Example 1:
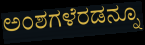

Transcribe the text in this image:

ಅಂಶಗಳೆರಡನ್ನೂ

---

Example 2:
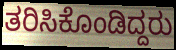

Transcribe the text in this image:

ತರಿಸಿಕೊಂಡಿದ್ದರು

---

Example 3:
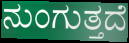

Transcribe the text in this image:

ನುಂಗುತ್ತದೆ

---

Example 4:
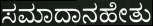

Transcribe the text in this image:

ಸಮಾದಾನಹೇತು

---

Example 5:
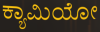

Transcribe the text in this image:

ಕ್ಯಾಮಿಯೋ